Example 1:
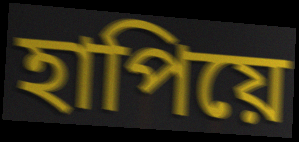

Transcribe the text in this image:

হাপিয়ে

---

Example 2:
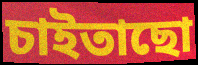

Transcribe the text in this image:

চাইতাছো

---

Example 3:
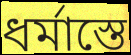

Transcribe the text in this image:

ধর্মাস্তে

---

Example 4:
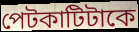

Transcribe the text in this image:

পেটকাটিটাকে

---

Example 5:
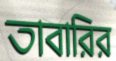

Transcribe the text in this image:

তাবারির